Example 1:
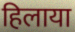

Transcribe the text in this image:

हिलाया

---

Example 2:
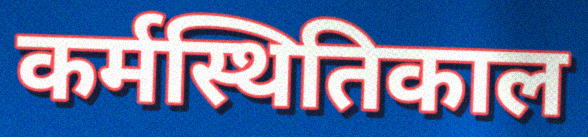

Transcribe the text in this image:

कर्मस्थितिकाल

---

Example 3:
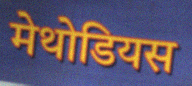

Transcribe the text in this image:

मेथोडियस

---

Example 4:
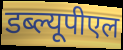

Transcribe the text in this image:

डब्ल्यूपीएल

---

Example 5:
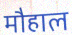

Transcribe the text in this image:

मौहाल